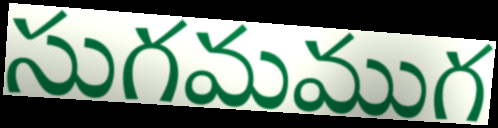
సుగమముగ